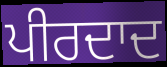
ਪੀਰਦਾਦ